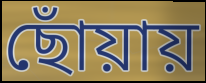
ছোঁয়ায়